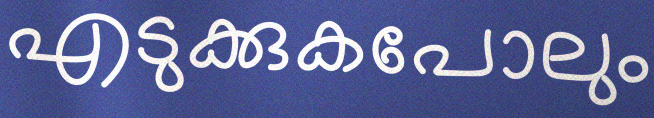
എടുക്കുകപോലും